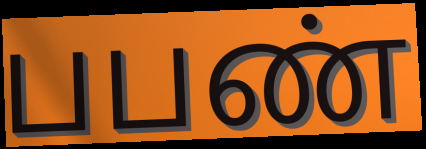
பபண்